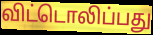
விட்டொலிப்பது